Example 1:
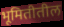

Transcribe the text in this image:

भूमितीतील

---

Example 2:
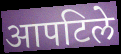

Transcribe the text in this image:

आपटिले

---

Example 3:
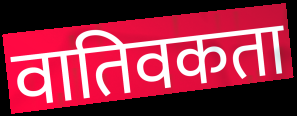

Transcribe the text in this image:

वातिवकता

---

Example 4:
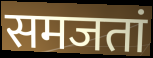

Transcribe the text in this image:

समजतां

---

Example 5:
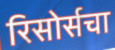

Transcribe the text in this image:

रिसोर्सचा